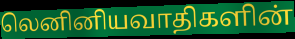
லெனினியவாதிகளின்